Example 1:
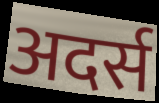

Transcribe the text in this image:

अदर्स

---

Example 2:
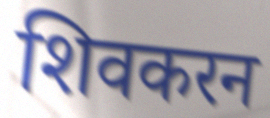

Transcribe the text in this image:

शिवकरन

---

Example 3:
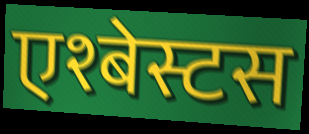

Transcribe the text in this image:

एश्बेस्टस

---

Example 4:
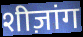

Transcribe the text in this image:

शीज़ांग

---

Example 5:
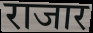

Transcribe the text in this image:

राजार